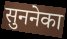
सुननेका